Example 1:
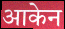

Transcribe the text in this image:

आकेन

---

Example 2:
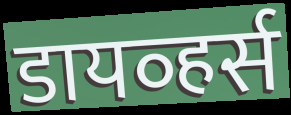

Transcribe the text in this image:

डायव्हर्स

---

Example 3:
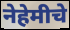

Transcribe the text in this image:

नेहेमीचे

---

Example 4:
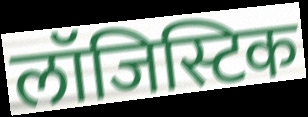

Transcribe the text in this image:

लॉजिस्टिक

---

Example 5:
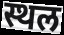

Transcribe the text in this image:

स्थल